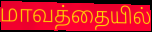
மாவத்தையில்